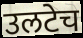
उलटेच